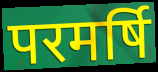
परमर्षि